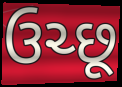
ઉચ્છૂ